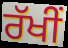
ਰੱਖੀਂ